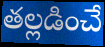
తల్లడించే